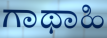
ಗಾಥಾಹಿ